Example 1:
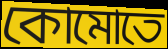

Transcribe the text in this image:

কোমোতে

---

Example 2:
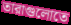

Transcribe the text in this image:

তারাগুলোতে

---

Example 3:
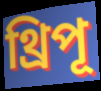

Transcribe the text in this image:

থ্রিপূ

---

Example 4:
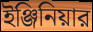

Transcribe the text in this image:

ইঞ্জিনিয়ার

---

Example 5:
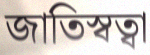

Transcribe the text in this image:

জাতিস্বত্বা